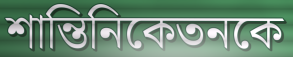
শান্তিনিকেতনকে